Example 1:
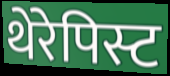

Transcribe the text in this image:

थेरेपिस्‍ट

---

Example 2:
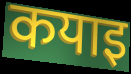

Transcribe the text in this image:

कयाइ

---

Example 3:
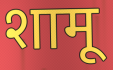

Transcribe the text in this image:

शामू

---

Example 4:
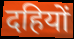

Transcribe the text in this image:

दहियों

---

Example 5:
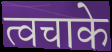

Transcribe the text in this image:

त्वचाके